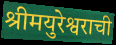
श्रीमयुरेश्वराची